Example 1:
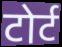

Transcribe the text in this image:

टोर्ट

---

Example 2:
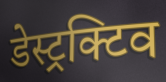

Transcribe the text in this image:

डेस्ट्रक्टिव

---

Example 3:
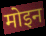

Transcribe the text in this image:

मोइन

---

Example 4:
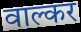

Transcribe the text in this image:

वाल्कर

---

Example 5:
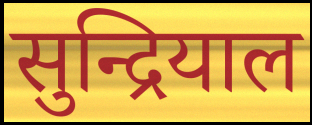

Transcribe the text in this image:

सुन्द्रियाल